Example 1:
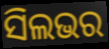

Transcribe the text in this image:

ସିଲଭର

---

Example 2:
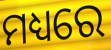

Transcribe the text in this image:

ମଧ୍ୟରେ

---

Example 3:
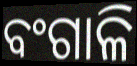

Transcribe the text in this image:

ବଂଗାଳି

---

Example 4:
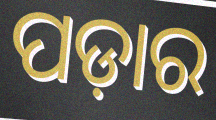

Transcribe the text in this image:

ପଡ଼ାର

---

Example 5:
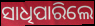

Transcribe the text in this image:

ସାଧିପାରିଲେ